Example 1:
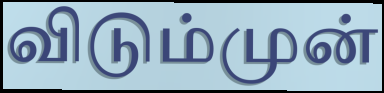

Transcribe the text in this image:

விடும்முன்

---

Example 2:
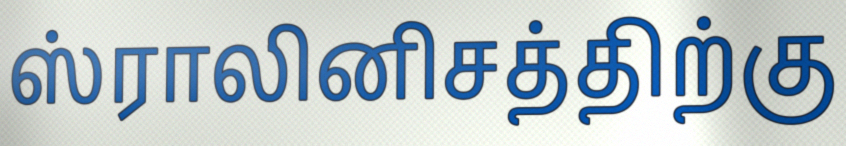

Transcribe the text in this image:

ஸ்ராலினிசத்திற்கு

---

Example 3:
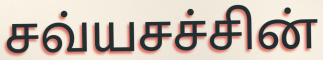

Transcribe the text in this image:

சவ்யசச்சின்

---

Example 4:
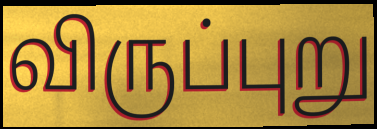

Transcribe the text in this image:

விருப்புறு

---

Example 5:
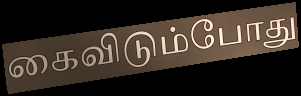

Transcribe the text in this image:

கைவிடும்போது